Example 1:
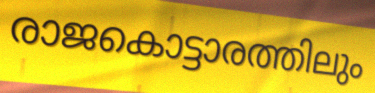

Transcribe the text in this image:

രാജകൊട്ടാരത്തിലും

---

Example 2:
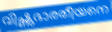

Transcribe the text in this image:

വിഷ്ണുഭാരതീയനെ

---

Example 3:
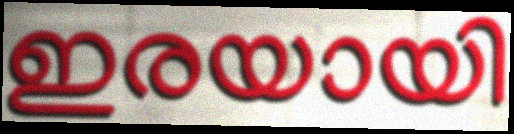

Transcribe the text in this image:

ഇരയായി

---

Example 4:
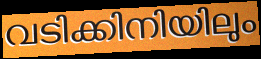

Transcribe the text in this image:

വടിക്കിനിയിലും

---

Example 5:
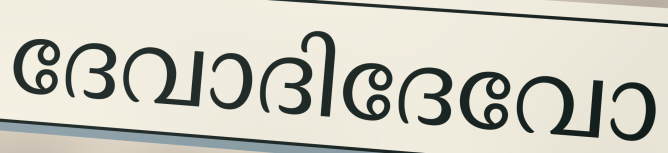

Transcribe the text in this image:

ദേവാദിദേവോ